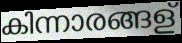
കിന്നാരങ്ങള്